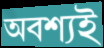
অবশ্যই